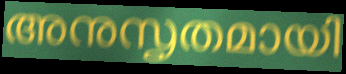
അനുസൃതമായി